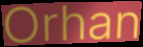
Orhan